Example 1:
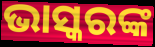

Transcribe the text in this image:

ଭାସ୍କରଙ୍କ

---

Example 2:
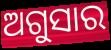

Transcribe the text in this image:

ଅଗୁସାର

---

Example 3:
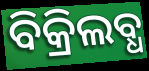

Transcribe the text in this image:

ବିକ୍ରିଲବ୍ଧ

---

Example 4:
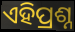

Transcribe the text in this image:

ଏହିପ୍ରଶ୍ନ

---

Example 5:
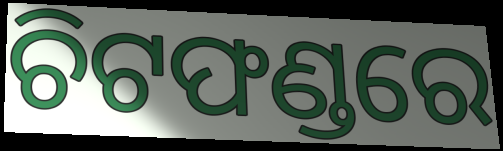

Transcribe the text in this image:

ଚିଟଫଣ୍ଡରେ